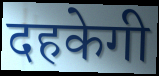
दहकेगी